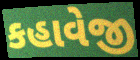
કહાવેજી